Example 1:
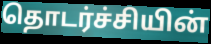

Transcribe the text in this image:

தொடர்ச்சியின்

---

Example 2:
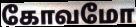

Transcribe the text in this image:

கோவமோ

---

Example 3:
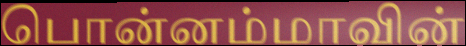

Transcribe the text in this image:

பொன்னம்மாவின்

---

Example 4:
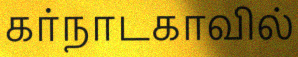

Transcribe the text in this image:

கர்நாடகாவில்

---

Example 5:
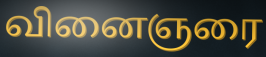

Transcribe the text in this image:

வினைஞரை